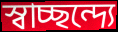
স্বাচ্ছন্দ্যে